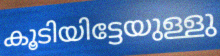
കൂടിയിട്ടേയുള്ളു